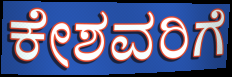
ಕೇಶವರಿಗೆ